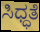
ಸಿಧ್ಧತೆ